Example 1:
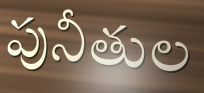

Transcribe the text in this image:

పునీతుల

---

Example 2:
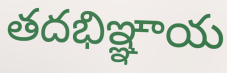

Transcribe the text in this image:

తదభిఞ్ఞాయ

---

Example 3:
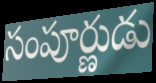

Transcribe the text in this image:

సంపూర్ణుడు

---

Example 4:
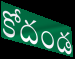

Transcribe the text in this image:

కోదండ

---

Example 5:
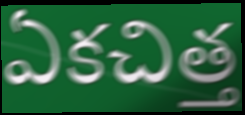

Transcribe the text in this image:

ఏకచిత్త